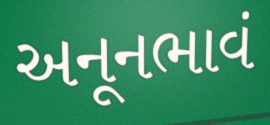
અનૂનભાવં